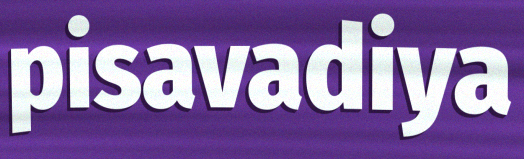
pisavadiya